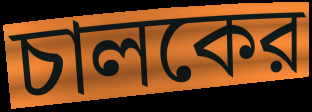
চালকের